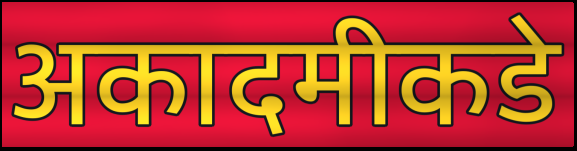
अकादमीकडे